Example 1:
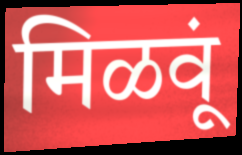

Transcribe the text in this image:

मिळवूं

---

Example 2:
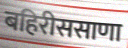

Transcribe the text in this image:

बहिरीससाणा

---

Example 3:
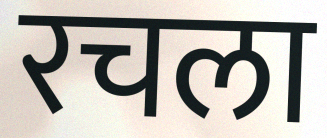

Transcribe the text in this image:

रचला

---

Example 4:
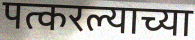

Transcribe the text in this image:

पत्करल्याच्या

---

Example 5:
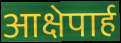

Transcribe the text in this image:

आक्षेपार्ह